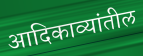
आदिकाव्यांतील